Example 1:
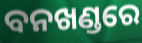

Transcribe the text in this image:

ବନଖଣ୍ଡରେ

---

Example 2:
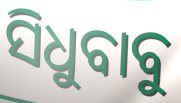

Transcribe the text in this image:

ସିଧୁବାବୁ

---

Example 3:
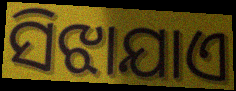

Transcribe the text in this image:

ସିଝାଯାଏ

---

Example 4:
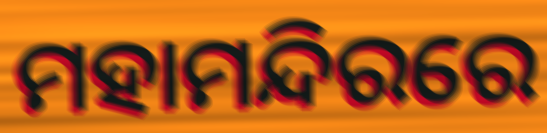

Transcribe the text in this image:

ମହାମନ୍ଦିରରେ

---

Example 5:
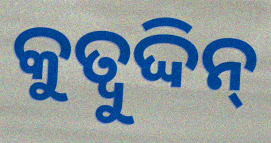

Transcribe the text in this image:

କୁତ୍ବୁଦ୍ଦିନ୍